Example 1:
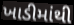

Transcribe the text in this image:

ખાડીમાંથી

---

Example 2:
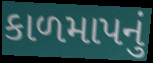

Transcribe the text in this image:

કાળમાપનું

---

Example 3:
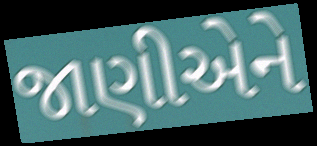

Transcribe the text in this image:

જાણીએને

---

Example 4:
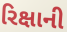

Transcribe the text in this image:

રિક્ષાની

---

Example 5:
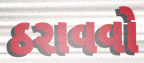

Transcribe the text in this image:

ઠરાવવો